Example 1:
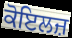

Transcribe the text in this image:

ਕੋਇਲਜ਼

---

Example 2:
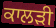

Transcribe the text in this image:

ਕਾਲੜੀ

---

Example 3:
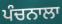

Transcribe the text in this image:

ਪੰਚਨਾਲਾ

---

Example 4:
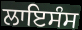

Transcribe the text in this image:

ਲਾਇਸੰਸ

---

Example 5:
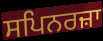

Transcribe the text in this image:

ਸਪਿਨਰਜ਼ਾ